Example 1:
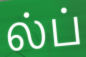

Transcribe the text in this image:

ல்ப்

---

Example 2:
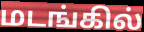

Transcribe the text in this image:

மடங்கில்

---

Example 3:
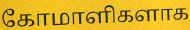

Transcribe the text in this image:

கோமாளிகளாக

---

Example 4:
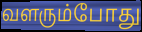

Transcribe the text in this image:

வளரும்போது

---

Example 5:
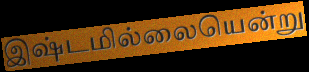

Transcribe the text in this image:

இஷ்டமில்லையென்று